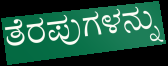
ತೆರಪುಗಳನ್ನು